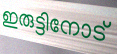
ഇരുട്ടിനോട്